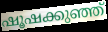
ഷൂഷക്കുഞ്ഞ്